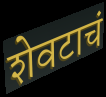
शेवटाचं